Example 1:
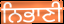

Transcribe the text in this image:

ਨਿਭਾਣੀ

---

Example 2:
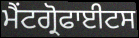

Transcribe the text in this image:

ਮੈਂਟਗ੍ਰੋਫਾਈਟਸ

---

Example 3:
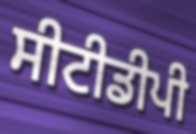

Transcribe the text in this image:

ਸੀਟੀਡੀਪੀ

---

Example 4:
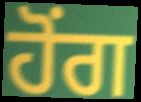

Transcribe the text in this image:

ਹੋੰਗ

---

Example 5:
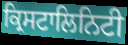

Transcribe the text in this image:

ਕ੍ਰਿਸਟਾਲਿਨਿਟੀ